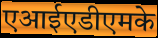
एआईएडीएमके